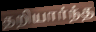
தறியார்ந்த